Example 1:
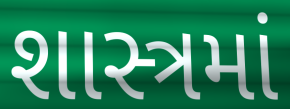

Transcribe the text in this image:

શાસ્ત્રમાં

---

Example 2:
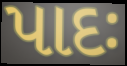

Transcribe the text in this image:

પાદઃ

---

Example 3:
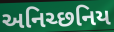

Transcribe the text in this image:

અનિચ્છનિય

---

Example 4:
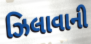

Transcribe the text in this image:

ઝિલાવાની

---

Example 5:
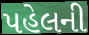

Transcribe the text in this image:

પહેલની